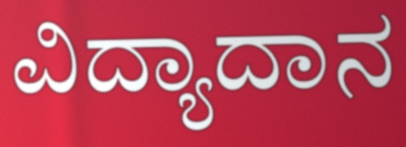
ವಿದ್ಯಾದಾನ